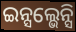
ଇନ୍ସଲ୍ଭେନ୍ସି